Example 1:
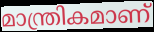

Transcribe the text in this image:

മാന്ത്രികമാണ്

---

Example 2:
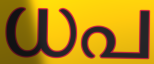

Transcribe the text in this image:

ധപ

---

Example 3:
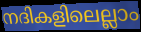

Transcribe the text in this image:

നദികളിലെല്ലാം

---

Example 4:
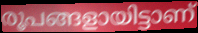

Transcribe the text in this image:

രൂപങ്ങളായിട്ടാണ്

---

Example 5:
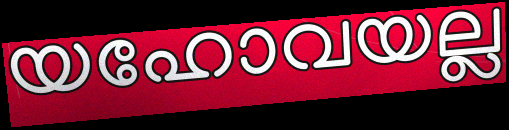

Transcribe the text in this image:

യഹോവയല്ല